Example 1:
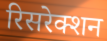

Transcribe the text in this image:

रिसरेक्शन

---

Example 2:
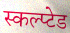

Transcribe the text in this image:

स्कल्प्टेड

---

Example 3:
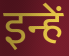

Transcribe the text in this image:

इन्‍हें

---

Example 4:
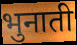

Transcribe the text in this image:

भुनाती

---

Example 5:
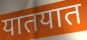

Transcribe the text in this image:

यातयात